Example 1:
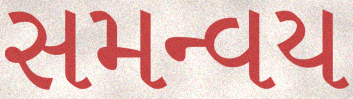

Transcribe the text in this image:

સમન્વય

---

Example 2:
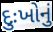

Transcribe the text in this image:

દુઃખોનું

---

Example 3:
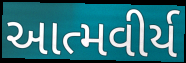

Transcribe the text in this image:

આત્મવીર્ય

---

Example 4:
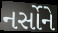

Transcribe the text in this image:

નર્સોને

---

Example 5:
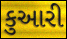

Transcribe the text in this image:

કુઆરી